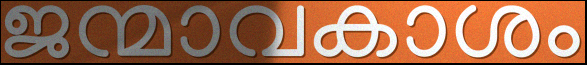
ജന്മാവകാശം